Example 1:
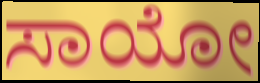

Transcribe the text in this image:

ಸಾಯೋ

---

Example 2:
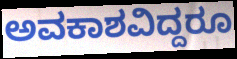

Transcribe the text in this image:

ಅವಕಾಶವಿದ್ದರೂ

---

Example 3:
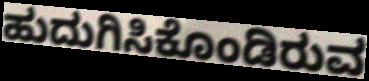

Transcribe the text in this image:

ಹುದುಗಿಸಿಕೊಂಡಿರುವ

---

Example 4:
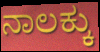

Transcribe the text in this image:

ನಾಲಕ್ಕು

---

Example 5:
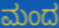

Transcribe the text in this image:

ಮಂದ